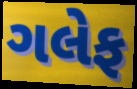
ગલેફ